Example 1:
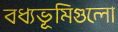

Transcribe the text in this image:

বধ্যভূমিগুলো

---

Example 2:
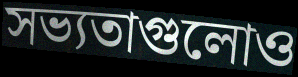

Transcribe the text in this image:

সভ্যতাগুলোও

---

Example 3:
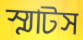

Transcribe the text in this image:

স্মাটস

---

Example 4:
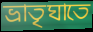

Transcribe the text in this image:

ভ্রাতৃঘাতে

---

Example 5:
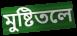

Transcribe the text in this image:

মুষ্টিতলে